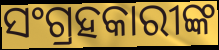
ସଂଗ୍ରହକାରୀଙ୍କ